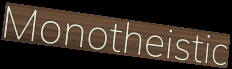
Monotheistic